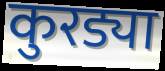
कुरड्या